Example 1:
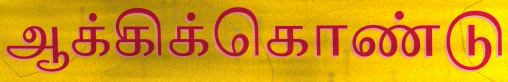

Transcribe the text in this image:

ஆக்கிக்கொண்டு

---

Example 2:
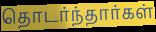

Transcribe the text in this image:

தொடர்ந்தார்கள்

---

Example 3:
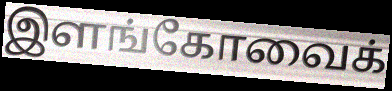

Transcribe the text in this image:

இளங்கோவைக்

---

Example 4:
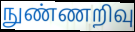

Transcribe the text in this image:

நுண்ணறிவு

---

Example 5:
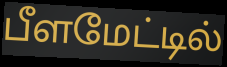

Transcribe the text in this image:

பீளமேட்டில்